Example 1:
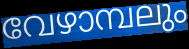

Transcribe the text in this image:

വേഴാമ്പലും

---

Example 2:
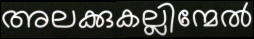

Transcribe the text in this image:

അലക്കുകല്ലിന്മേൽ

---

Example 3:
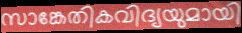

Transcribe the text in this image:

സാങ്കേതികവിദ്യയുമായി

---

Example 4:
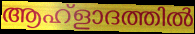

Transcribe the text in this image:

ആഹ്ളാദത്തിൽ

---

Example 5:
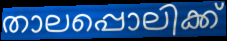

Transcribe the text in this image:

താലപ്പൊലിക്ക്